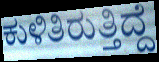
ಕುಳಿತಿರುತ್ತಿದ್ದೆ